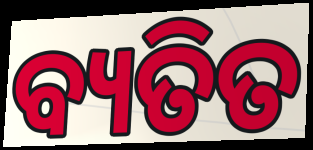
ବ୍ୟତିତ